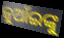
ଜୁଆଁଇଙ୍କୁ